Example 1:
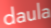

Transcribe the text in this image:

daula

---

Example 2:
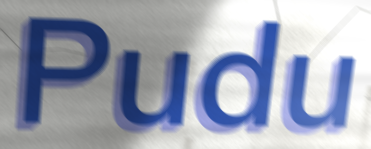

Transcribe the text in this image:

Pudu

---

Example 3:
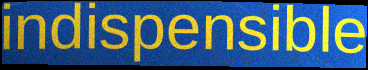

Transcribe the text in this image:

indispensible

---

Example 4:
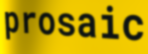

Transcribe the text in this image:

prosaic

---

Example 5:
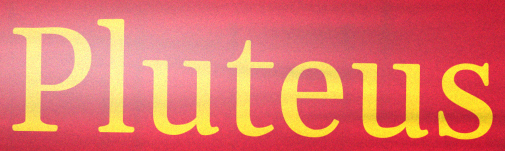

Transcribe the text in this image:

Pluteus